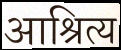
आश्रित्य